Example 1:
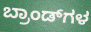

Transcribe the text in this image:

ಬ್ರಾಂಡ್‌ಗಳ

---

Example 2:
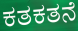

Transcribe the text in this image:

ಕತಕತನೆ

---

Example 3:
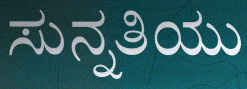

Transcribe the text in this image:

ಸುನ್ನತಿಯು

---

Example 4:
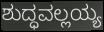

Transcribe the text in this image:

ಶುದ್ಧವಲ್ಲಯ್ಯ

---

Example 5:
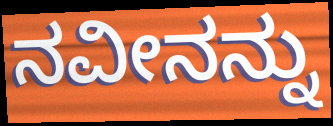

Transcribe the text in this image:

ನವೀನನ್ನು